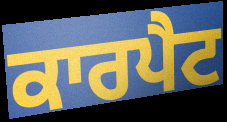
ਕਾਰਪੈਟ